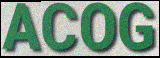
ACOG